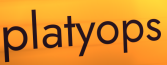
platyops